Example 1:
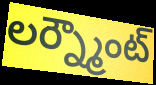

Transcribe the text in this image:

లర్న్మౌంట్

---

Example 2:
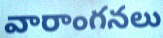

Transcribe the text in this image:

వారాంగనలు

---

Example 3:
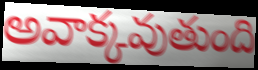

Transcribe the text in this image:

అవాక్కవుతుంది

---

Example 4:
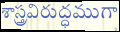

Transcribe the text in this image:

శాస్త్రవిరుద్ధముగా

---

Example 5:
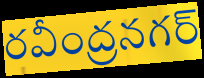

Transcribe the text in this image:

రవీంద్రనగర్